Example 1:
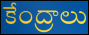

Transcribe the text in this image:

కేంద్రాలు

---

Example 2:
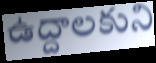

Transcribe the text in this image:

ఉద్దాలకుని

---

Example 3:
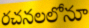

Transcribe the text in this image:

రచనలలోనూ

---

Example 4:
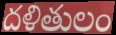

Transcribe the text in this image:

దళితులం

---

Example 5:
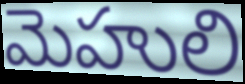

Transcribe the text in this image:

మెహులి